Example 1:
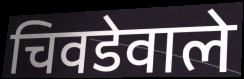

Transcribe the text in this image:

चिवडेवाले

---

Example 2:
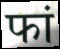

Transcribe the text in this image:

फां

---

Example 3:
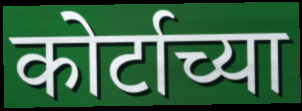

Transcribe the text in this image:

कोर्टाच्या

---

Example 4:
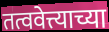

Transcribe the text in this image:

तत्ववेत्त्याच्या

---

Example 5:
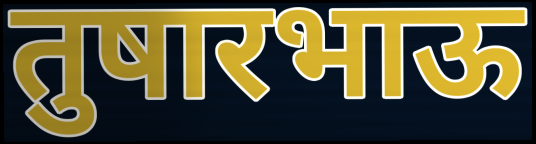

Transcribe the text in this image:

तुषारभाऊ